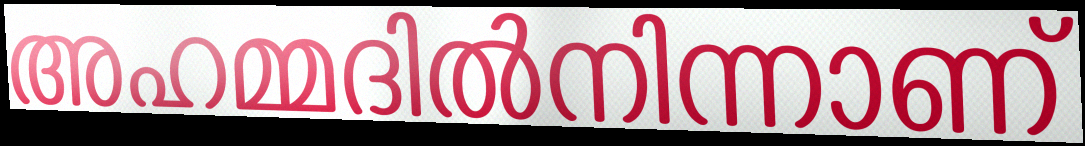
അഹമ്മദിൽനിന്നാണ്